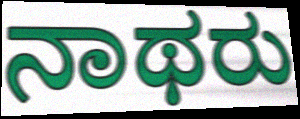
ನಾಥರು